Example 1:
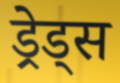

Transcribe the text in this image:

ड्रेड्स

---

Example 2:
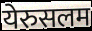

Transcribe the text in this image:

येरुसलम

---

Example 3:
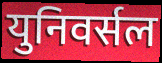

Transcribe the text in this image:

युनिवर्सल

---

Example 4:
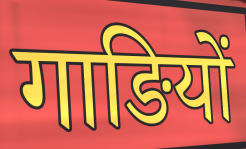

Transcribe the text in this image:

गाङियों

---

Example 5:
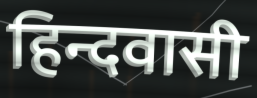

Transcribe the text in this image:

हिन्दवासी